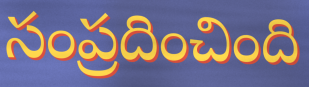
సంప్రదించింది